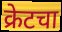
क्रेटचा